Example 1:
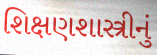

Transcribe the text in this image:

શિક્ષણશાસ્ત્રીનું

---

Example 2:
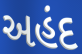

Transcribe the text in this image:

અહંદ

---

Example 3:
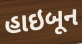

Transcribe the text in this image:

હાઇબૂન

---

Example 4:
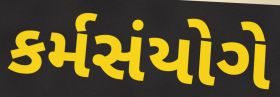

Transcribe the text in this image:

કર્મસંયોગે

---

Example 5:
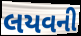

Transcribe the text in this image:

લયવની